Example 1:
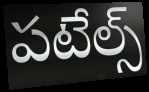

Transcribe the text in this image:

పటేల్స్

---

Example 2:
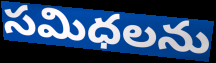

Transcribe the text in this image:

సమిధలను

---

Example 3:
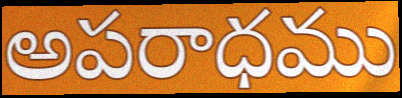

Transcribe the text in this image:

అపరాధము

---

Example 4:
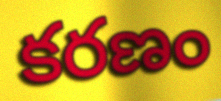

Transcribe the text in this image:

కరణం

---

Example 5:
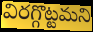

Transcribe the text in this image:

విరగ్గొట్టమని